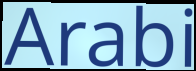
Arabi